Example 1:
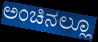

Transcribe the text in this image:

ಅಂಚಿನಲ್ಲೂ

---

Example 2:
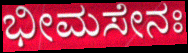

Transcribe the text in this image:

ಭೀಮಸೇನಃ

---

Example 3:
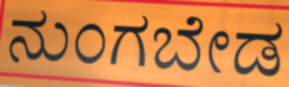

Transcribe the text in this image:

ನುಂಗಬೇಡ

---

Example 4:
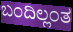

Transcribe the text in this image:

ಬಂದಿಲ್ಲಂತ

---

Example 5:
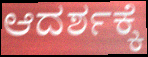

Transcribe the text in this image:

ಆದರ್ಶಕ್ಕೆ